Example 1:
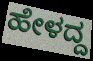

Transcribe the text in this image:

ಹೇಳದ್ದ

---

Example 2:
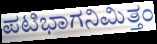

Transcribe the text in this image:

ಪಟಿಭಾಗನಿಮಿತ್ತಂ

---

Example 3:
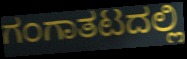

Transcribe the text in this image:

ಗಂಗಾತಟದಲ್ಲಿ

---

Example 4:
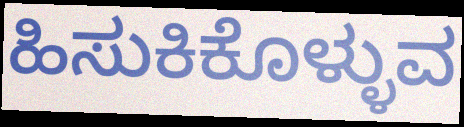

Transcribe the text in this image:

ಹಿಸುಕಿಕೊಳ್ಳುವ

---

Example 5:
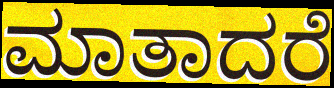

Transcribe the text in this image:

ಮಾತಾದರೆ